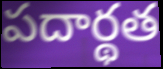
పదార్థత